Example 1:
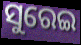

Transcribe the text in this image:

ସୁରେଇ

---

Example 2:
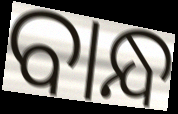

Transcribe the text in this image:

ବାନ୍ଧ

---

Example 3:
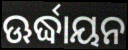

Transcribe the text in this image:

ଊର୍ଦ୍ଧାୟନ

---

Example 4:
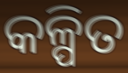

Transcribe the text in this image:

କଳ୍ପିତ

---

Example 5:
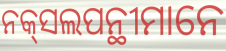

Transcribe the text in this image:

ନକ୍‌ସଲପନ୍ଥୀମାନେ